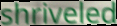
shriveled